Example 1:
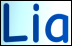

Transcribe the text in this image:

Lia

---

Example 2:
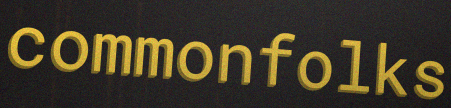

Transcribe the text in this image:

commonfolks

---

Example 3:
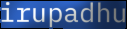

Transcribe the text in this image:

irupadhu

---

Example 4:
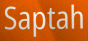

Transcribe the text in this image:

Saptah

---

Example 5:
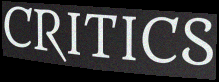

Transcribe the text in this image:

CRITICS